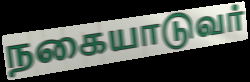
நகையாடுவர்